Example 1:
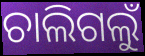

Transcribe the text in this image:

ଚାଲିଗଲୁଁ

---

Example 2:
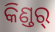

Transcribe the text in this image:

କିଣ୍ଡର୍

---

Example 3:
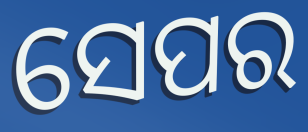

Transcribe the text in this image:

ସେପର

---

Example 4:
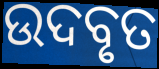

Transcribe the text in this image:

ଉଦବୃତ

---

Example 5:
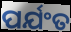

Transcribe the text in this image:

ପର୍ଯଂତ